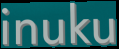
inuku